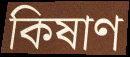
কিষাণ